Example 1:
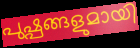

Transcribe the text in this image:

പുഷ്പങ്ങളുമായി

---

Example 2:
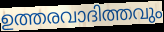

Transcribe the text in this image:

ഉത്തരവാദിത്തവും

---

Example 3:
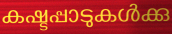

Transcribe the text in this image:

കഷ്ടപ്പാടുകൾക്കു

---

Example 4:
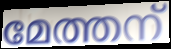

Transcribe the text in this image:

മേത്തന്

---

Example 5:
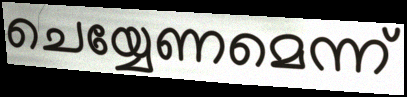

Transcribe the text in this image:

ചെയ്യേണമെന്ന്